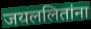
जयललितांना